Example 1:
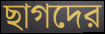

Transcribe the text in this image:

ছাগদের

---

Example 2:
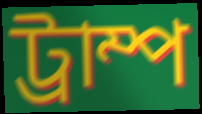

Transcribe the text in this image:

ট্রাম্প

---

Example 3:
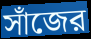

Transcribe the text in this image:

সাঁজের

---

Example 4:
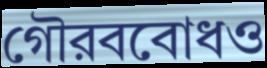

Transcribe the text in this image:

গৌরববোধও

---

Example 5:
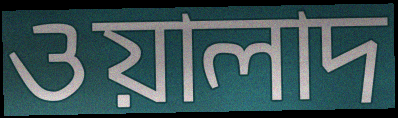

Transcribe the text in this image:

ওয়ালাদ